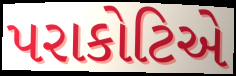
પરાકોટિએ